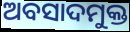
ଅବସାଦମୁକ୍ତ